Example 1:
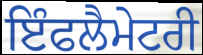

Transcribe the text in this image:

ਇੰਫਲੈਮੇਟਰੀ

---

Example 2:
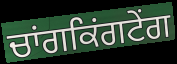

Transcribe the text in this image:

ਚਾਂਗਕਿਂਗਟੇਂਗ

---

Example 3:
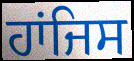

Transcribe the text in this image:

ਹਾਂਜਿਸ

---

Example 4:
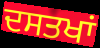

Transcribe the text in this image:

ਦਸਤਖਾਂ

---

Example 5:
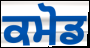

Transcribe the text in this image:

ਕਮੋਡ